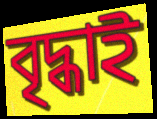
বৃদ্ধাই